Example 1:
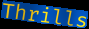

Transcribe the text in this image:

Thrills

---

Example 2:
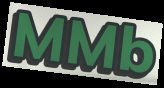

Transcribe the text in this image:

MMb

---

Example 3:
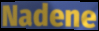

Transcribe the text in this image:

Nadene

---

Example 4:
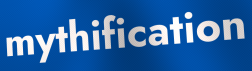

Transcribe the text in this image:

mythification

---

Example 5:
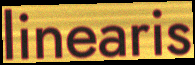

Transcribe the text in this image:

linearis